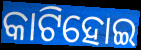
କାଟିହୋଇ